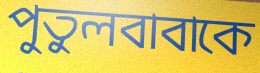
পুতুলবাবাকে